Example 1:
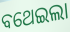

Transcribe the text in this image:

ବଥେଇଲା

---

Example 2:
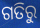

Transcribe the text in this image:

ଗତିରୁ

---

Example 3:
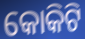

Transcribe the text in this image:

କୋକିଟି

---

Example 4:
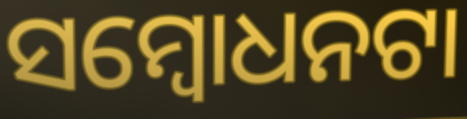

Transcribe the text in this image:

ସମ୍ବୋଧନଟା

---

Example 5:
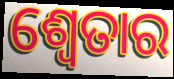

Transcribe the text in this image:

ଶ୍ୱେତାର